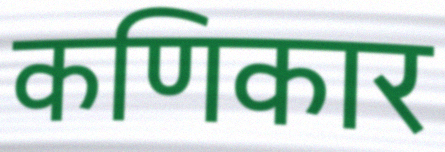
कणिकार